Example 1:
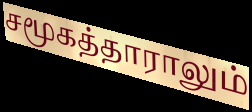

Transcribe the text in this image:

சமூகத்தாராலும்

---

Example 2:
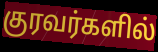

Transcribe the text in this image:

குரவர்களில்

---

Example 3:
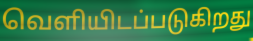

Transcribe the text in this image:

வெளியிடப்படுகிறது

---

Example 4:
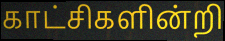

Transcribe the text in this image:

காட்சிகளின்றி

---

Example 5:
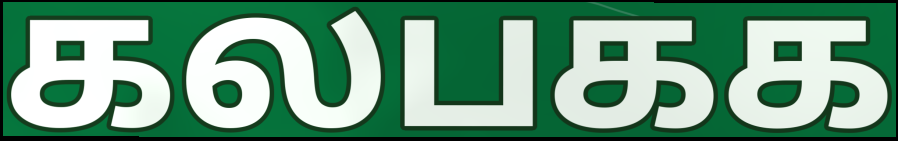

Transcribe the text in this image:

கலபகக